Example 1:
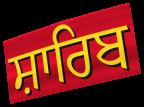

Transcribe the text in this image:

ਸ਼ਾਰਿਬ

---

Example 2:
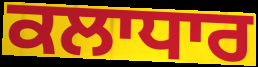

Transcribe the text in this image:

ਕਲਾਧਾਰ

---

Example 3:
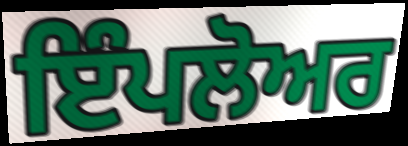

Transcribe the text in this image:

ਇੰਪਲੋਅਰ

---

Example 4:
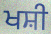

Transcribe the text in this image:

ਖਸ਼ੀ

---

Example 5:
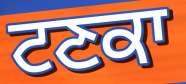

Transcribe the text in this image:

ਟਣਕਾ